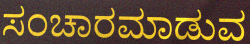
ಸಂಚಾರಮಾಡುವ